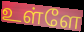
உள்ளே